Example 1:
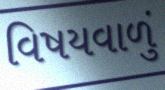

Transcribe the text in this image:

વિષયવાળું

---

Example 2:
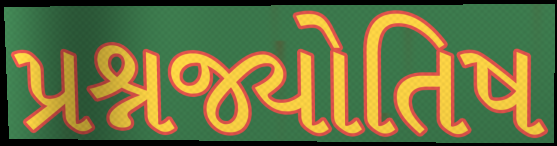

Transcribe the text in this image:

પ્રશ્નજ્યોતિષ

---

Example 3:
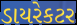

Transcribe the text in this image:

ડાયરેકટર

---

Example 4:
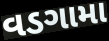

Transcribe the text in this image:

વડગામા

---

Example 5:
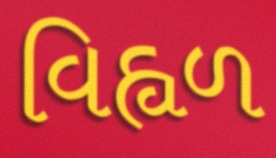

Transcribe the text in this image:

વિહ્વળ